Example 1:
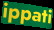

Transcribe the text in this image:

ippati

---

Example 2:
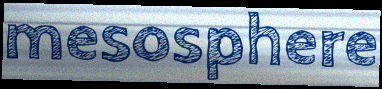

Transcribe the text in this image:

mesosphere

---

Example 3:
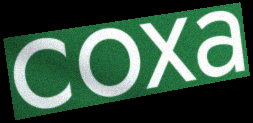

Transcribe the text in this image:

coxa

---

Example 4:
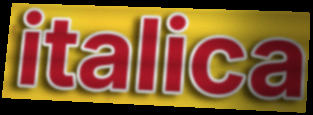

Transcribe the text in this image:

italica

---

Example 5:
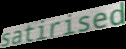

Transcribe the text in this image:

satirised